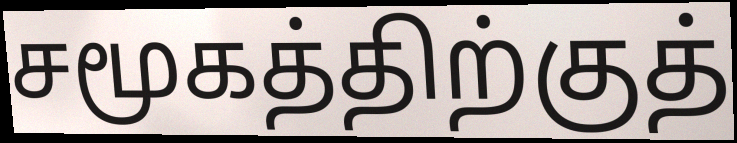
சமூகத்திற்குத்